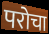
परोचा